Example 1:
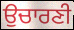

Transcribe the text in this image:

ਉਚਾਰਣੀ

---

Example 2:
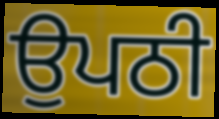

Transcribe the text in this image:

ਉਪਠੀ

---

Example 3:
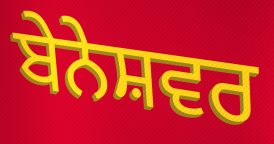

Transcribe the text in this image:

ਬੇਨੇਸ਼ਵਰ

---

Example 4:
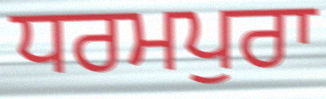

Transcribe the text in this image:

ਧਰਮਪੁਰਾ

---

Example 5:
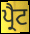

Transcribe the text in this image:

ਪ੍ਰੈਟ